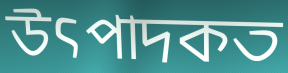
উৎপাদকত